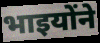
भाइयोंने